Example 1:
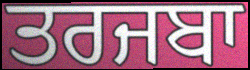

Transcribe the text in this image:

ਤਰਜਬਾ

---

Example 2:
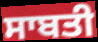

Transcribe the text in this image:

ਸਾਬਤੀ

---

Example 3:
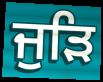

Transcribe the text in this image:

ਜੁੜਿ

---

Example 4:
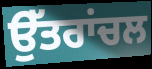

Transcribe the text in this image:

ਉੱਤਰਾਂਚਲ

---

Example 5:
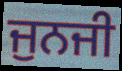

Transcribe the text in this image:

ਜੁਨਜੀ